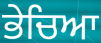
ਭੇਚਿਆ